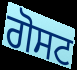
ਗੋਸਟ